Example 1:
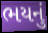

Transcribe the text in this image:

ભયનું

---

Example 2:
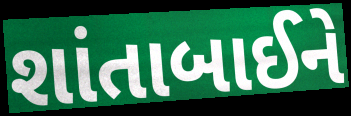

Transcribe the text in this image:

શાંતાબાઈને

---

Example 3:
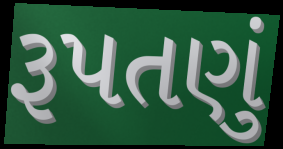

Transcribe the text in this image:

રૂપતણું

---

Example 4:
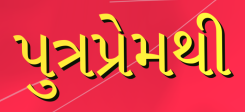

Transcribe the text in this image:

પુત્રપ્રેમથી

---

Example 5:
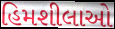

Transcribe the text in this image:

હિમશીલાઓ